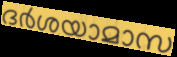
ദർശയാമാസ